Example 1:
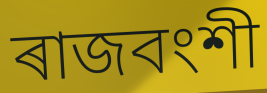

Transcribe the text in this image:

ৰাজবংশী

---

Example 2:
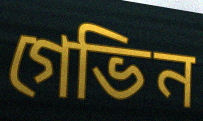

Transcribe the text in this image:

গেভিন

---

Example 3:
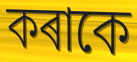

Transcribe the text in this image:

কৰাকে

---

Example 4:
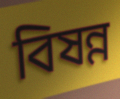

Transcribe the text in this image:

বিষন্ন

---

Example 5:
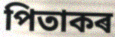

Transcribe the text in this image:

পিতাকৰ